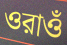
ওরাওঁ